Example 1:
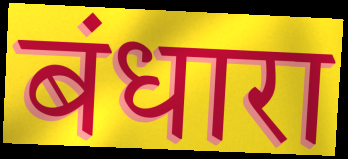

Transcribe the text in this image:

बंधारा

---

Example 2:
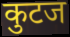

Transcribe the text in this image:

कुटज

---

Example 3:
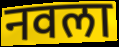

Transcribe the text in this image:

नवला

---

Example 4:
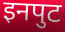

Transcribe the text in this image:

इनपुट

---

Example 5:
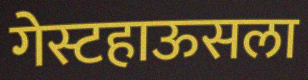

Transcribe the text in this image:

गेस्टहाऊसला